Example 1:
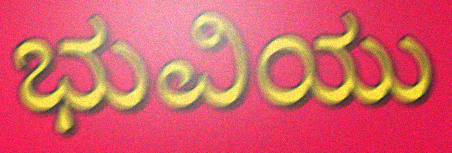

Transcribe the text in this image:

ಭುವಿಯು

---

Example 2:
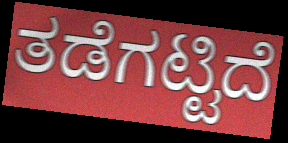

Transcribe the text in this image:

ತಡೆಗಟ್ಟಿದೆ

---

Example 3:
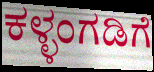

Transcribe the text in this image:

ಕಳ್ಳಂಗಡಿಗೆ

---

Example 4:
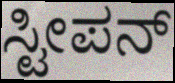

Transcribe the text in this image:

ಸ್ಟೀಪನ್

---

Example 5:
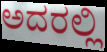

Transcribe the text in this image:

ಅದರಲ್ಲಿ